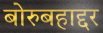
बोरुबहाद्दर